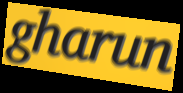
gharun